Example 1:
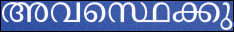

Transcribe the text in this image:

അവസ്ഥെക്കു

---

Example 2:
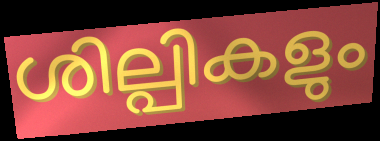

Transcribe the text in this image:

ശില്പികളും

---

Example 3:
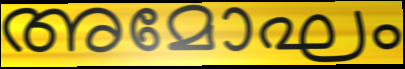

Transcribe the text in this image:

അമോഘം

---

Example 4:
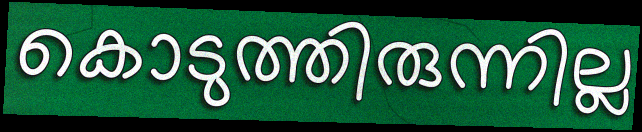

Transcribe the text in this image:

കൊടുത്തിരുന്നില്ല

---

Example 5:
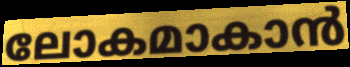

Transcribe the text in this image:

ലോകമാകാൻ